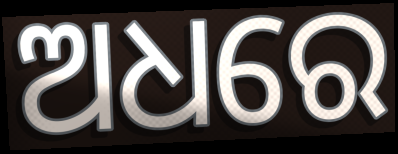
ଅଧରେ